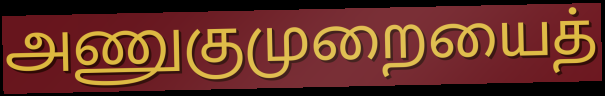
அணுகுமுறையைத்